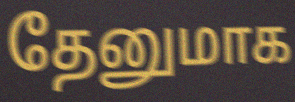
தேனுமாக